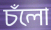
চঁলো